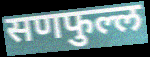
सणफुल्ल